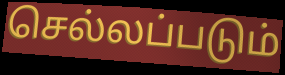
செல்லப்படும்